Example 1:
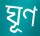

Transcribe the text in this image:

ঘূণ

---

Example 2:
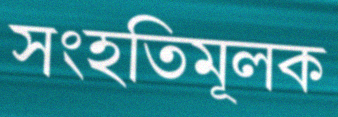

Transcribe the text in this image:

সংহতিমূলক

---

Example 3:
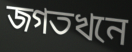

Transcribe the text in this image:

জগতখনে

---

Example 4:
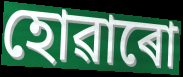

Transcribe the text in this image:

হোৱাৰো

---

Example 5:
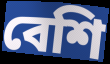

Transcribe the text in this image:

বেশি